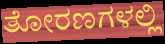
ತೋರಣಗಳಲ್ಲಿ